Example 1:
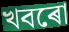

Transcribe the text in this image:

খবৰো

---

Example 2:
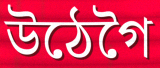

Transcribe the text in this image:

উঠেগৈ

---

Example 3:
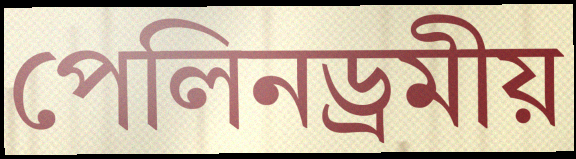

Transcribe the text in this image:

পেলিনড্ৰমীয়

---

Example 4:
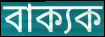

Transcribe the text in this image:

বাক্যক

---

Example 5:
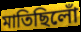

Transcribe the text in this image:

মাতিছিলোঁ